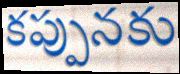
కప్పునకు